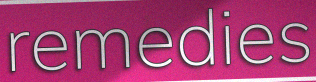
remedies